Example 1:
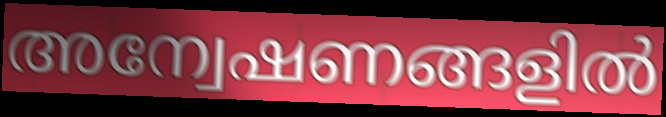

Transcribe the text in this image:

അന്വേഷണങ്ങളിൽ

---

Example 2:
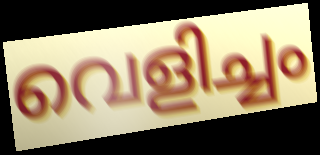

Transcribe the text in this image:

വെളിച്ചം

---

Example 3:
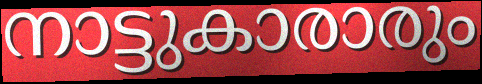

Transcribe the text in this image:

നാട്ടുകാരാരും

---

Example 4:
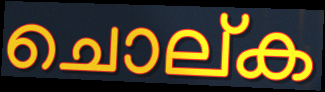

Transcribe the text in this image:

ചൊല്ക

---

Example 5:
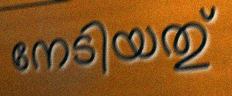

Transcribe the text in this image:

നേടിയതു്